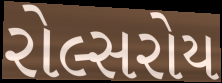
રોલ્સરોય